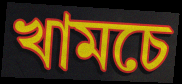
খামচে